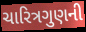
ચારિત્રગુણની